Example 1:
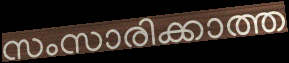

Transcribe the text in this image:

സംസാരിക്കാത്ത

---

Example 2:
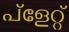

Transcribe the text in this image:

പ്ളേറ്റ്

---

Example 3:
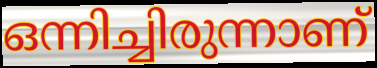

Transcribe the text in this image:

ഒന്നിച്ചിരുന്നാണ്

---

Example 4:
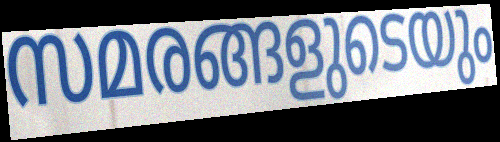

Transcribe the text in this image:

സമരങ്ങളുടെയും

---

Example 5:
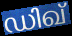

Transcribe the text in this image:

ഡിഖ്